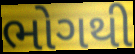
ભોગથી